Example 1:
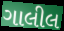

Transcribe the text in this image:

ગાલીલ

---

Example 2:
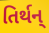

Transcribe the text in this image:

તિર્થન્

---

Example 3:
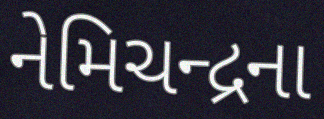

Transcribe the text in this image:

નેમિચન્દ્રના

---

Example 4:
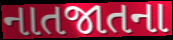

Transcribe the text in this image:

નાતજાતના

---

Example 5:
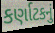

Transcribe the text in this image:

કર્ણાટકનું